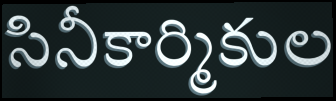
సినీకార్మికుల